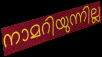
നാമറിയുന്നില്ല